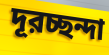
দূরচ্ছন্দা